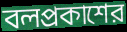
বলপ্রকাশের